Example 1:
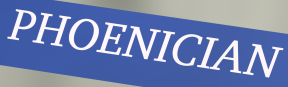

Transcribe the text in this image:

PHOENICIAN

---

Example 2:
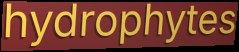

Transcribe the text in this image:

hydrophytes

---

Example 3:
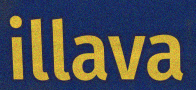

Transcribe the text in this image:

illava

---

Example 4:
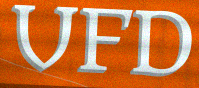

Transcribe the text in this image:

UFD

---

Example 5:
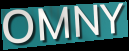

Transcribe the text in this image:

OMNY